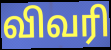
விவரி